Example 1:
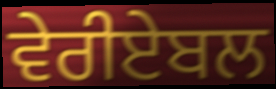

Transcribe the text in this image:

ਵੇਰੀਏਬਲ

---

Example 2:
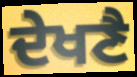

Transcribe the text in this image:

ਦੇਖਣੈ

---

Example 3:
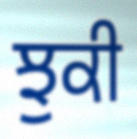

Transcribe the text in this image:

ਝੁਕੀ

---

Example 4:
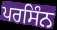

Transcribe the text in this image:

ਪਰਸਿੰਨ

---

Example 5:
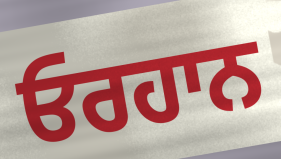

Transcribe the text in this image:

ਓਰਹਾਨ